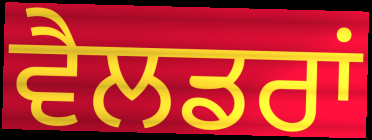
ਵੈਲਡਰਾਂ